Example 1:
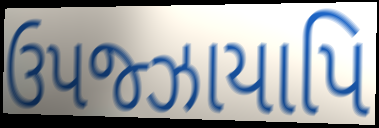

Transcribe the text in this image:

ઉપજ્ઝાયાપિ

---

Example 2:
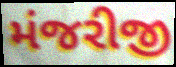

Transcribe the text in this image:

મંજરીજી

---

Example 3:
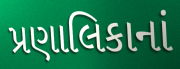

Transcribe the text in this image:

પ્રણાલિકાનાં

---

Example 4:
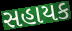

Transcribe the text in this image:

સહાયક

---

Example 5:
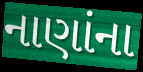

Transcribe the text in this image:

નાણાંના